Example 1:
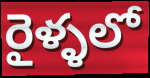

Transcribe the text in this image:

రైళ్ళలో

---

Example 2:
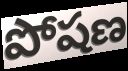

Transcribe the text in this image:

పోషణ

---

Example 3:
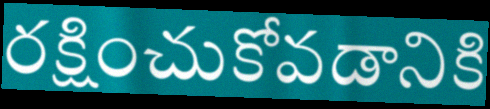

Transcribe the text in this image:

రక్షించుకోవడానికి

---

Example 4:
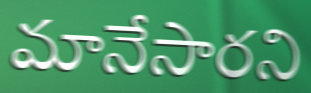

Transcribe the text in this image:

మానేసారని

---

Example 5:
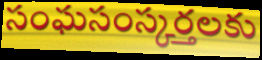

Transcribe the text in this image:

సంఘసంస్కర్తలకు